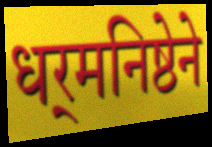
धर्मनिष्ठेने